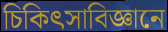
চিকিৎসাবিজ্ঞানে